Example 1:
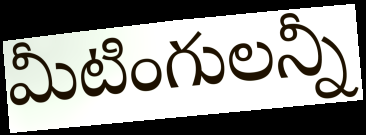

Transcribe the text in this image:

మీటింగులన్నీ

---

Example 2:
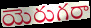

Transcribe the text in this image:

యెరుగరా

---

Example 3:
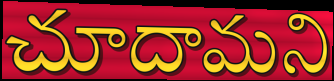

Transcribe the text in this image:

చూదామని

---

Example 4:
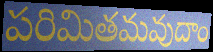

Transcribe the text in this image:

పరిమితమవుదాం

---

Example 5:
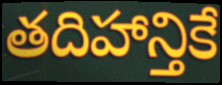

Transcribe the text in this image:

తదిహాన్తికే